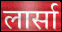
लार्सा